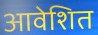
आवेशित